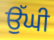
ਉੱਘੀ